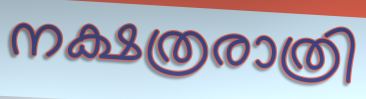
നക്ഷത്രരാത്രി